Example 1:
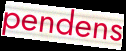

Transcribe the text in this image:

pendens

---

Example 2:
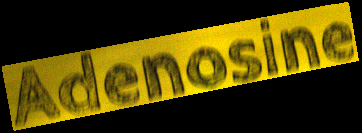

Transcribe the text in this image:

Adenosine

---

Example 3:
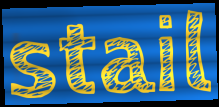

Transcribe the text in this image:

stail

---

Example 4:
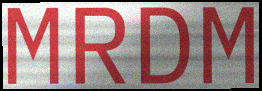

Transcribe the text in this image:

MRDM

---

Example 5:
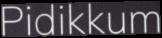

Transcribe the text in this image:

Pidikkum